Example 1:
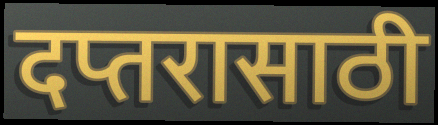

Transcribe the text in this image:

दप्तरासाठी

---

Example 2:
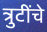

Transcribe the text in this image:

त्रुटींचे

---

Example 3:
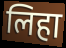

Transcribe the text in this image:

लिहा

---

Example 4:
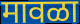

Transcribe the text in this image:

मावळा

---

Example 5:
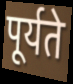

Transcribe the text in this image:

पूर्यते